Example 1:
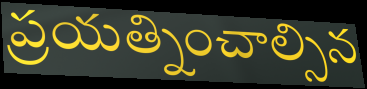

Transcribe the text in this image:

ప్రయత్నించాల్సిన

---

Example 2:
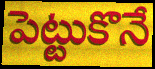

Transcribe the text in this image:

పెట్టుకొనే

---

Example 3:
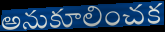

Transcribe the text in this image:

అనుకూలించక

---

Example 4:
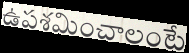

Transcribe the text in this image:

ఉపశమించాలంటే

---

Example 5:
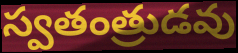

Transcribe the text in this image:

స్వతంత్రుడవు